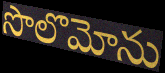
సొలొమోను